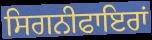
ਸਿਗਨੀਫਾਇਰਾਂ